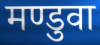
मण्डुवा